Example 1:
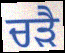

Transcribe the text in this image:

ਚੜੈ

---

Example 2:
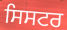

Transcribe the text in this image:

ਸਿਸਟਰ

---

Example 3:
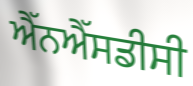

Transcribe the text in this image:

ਐੱਨਐੱਸਡੀਸੀ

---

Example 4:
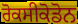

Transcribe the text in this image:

ਰੋਕਸੀਕੋਡੋਨ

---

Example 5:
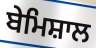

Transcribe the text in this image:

ਬੇਮਿਸ਼ਾਲ